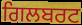
ਗਿਲਬਰਟ